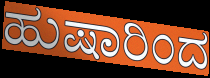
ಹುಷಾರಿಂದ